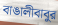
বাঙালীবাবুর